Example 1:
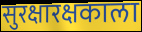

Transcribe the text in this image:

सुरक्षारक्षकाला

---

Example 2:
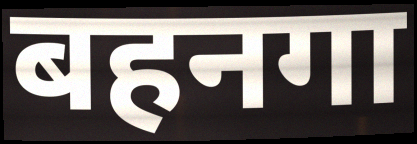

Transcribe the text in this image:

बहनगा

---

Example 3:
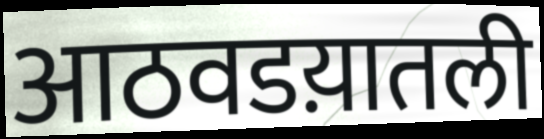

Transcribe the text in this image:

आठवडय़ातली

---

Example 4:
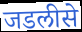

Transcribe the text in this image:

जडलीसे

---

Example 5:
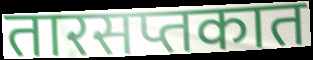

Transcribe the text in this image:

तारसप्तकात